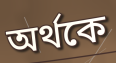
অৰ্থকে